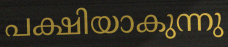
പക്ഷിയാകുന്നു